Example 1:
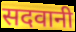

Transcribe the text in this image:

सदवानी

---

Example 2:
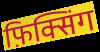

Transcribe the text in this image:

फ़िक्सिंग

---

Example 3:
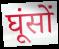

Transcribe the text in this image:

घूंसों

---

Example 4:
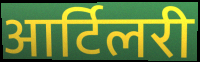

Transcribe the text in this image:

आर्टिलरी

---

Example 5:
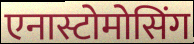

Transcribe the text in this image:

एनास्टोमोसिंग